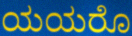
ಯಯರೊ